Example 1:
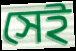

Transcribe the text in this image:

সেই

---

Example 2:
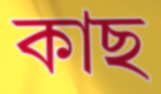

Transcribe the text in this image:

কাছ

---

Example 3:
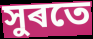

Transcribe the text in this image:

সুৰতে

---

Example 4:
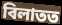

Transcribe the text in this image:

বিলাতত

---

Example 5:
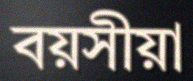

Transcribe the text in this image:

বয়সীয়া